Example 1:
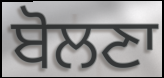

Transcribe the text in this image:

ਬੋਲਣਾ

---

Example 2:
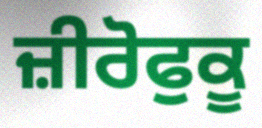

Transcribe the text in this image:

ਜ਼ੀਰੋਫੁਕੂ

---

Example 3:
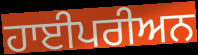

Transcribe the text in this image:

ਹਾਈਪਰੀਅਨ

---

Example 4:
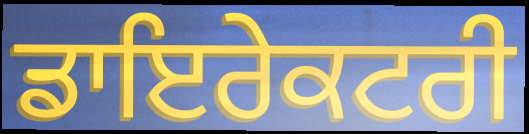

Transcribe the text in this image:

ਡਾਇਰੇਕਟਰੀ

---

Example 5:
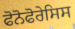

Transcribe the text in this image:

ਫੋਨੋਫੋਰੇਸਿਸ